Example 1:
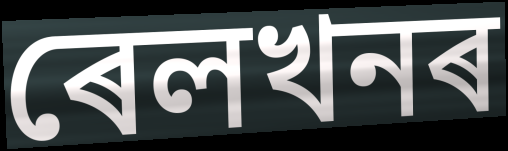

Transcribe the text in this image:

ৰেলখনৰ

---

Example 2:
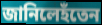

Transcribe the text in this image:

জানিলেহঁতেন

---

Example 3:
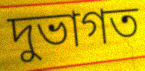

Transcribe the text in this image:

দুভাগত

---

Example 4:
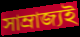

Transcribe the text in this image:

সাম্ৰাজ্যই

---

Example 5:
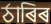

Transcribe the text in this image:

ঠাৰিৰ